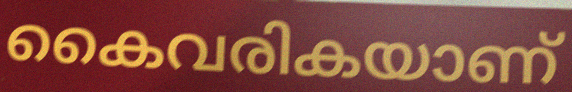
കൈവരികയാണ്